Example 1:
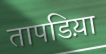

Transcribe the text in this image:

तापडिय़ा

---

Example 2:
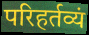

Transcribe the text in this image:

परिहर्तव्यं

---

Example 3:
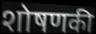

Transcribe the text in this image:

शोषणकी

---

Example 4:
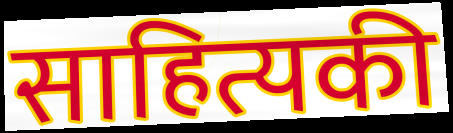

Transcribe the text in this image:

साहित्यकी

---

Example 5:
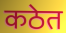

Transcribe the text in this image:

कठेत